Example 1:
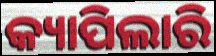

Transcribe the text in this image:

କ୍ୟାପିଲାରି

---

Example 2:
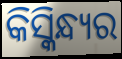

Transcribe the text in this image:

କିସ୍କିନ୍ଧ୍ୟର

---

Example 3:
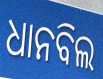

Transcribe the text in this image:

ଧାନବିଲ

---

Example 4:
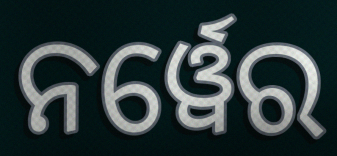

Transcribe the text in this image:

ନର୍ୱେର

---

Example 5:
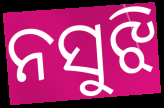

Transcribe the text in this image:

ନସୁଝି